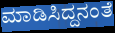
ಮಾಡಿಸಿದ್ದನಂತೆ